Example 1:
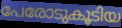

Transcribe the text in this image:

പേരോടുകൂടിയ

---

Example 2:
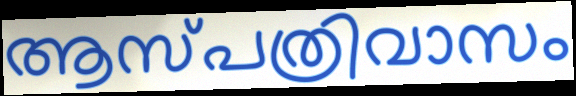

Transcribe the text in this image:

ആസ്പത്രിവാസം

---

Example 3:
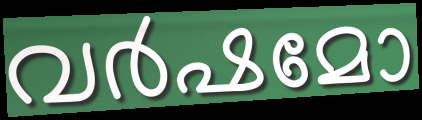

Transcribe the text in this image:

വർഷമോ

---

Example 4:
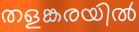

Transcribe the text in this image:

തളങ്കരയിൽ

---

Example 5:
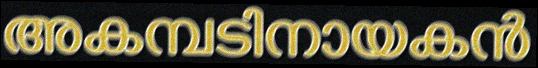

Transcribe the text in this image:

അകമ്പടിനായകൻ